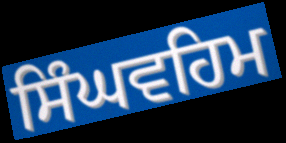
ਸਿੰਘਵਹਿਮ